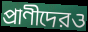
প্রাণীদেরও